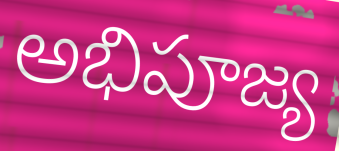
అభిపూజ్య